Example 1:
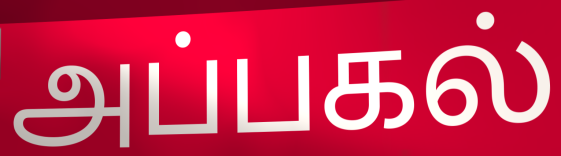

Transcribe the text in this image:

அப்பகல்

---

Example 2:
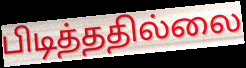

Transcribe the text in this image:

பிடித்ததில்லை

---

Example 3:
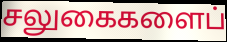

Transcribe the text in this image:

சலுகைகளைப்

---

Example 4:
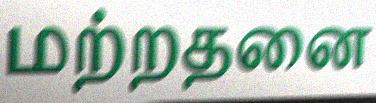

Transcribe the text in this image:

மற்றதனை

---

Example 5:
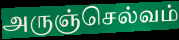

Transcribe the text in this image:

அருஞ்செல்வம்